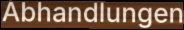
Abhandlungen